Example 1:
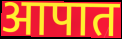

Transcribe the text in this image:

आपात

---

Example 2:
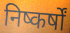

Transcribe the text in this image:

निष्कर्षों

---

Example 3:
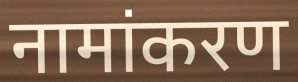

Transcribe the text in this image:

नामांकरण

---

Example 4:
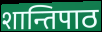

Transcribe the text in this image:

शान्तिपाठ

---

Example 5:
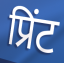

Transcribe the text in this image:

प्रिंट